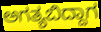
ಅಗತ್ಯಬಿದ್ದಾಗ